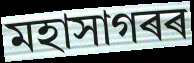
মহাসাগৰৰ